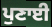
ਪੁਣਾਈ